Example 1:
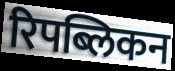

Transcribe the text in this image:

रिपब्लिकन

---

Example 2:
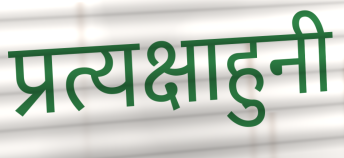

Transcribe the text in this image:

प्रत्यक्षाहुनी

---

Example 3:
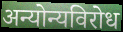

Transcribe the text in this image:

अन्योन्यविरोध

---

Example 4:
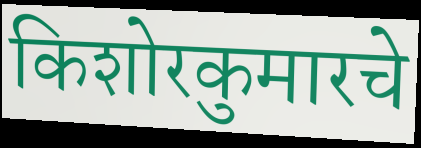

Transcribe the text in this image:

किशोरकुमारचे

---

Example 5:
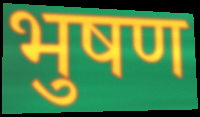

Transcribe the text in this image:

भुषण